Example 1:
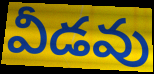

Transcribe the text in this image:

వీడవు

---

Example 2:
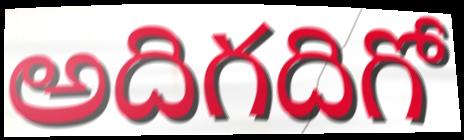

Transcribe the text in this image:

అదిగదిగో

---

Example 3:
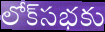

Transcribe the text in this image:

లోక్‌సభకు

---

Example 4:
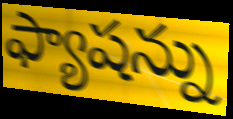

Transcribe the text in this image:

ఫ్యాషన్ను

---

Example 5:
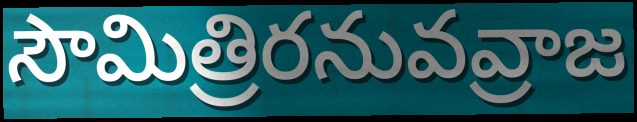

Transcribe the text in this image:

సౌమిత్రిరనువవ్రాజ